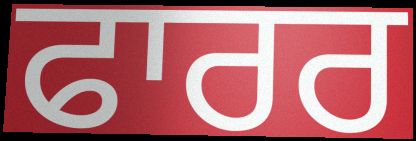
ਫਾਰਰ